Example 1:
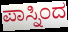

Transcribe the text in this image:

ಪಾಸ್ನಿಂದ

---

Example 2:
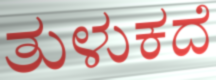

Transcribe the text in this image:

ತುಳುಕದೆ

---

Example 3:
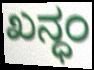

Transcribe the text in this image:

ಖನ್ಧಂ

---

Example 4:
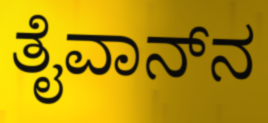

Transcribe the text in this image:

ತೈವಾನ್‌ನ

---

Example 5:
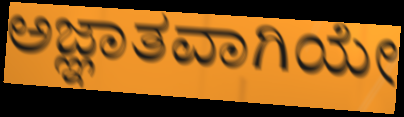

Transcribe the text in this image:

ಅಜ್ಞಾತವಾಗಿಯೇ